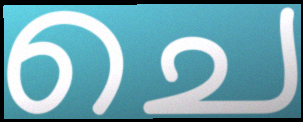
ചെ